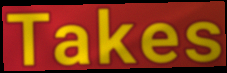
Takes